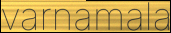
varnamala